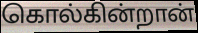
கொல்கின்றான்